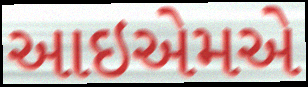
આઇએમએ